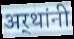
अर्थांनी